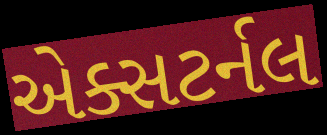
એક્સટર્નલ